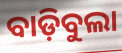
ବାଡ଼ିବୁଲା